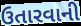
ઉતારવાની